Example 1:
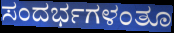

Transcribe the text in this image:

ಸಂದರ್ಭಗಳಂತೂ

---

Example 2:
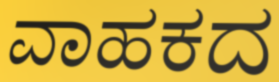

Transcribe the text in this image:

ವಾಹಕದ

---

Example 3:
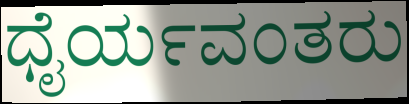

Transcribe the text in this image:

ಧೈರ್ಯವಂತರು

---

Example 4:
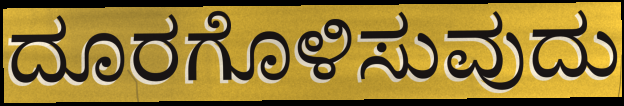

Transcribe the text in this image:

ದೂರಗೊಳಿಸುವುದು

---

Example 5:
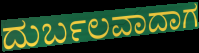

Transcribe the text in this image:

ದುರ್ಬಲವಾದಾಗ